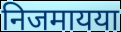
निजमायया